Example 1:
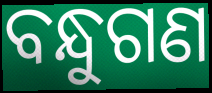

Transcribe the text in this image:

ବନ୍ଧୁଗଣ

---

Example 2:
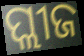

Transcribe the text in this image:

ପ୍ଲୀଜ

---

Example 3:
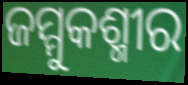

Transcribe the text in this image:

ଜମ୍ମୁକଶ୍ମୀର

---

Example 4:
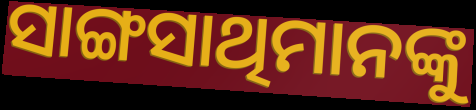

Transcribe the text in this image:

ସାଙ୍ଗସାଥିମାନଙ୍କୁ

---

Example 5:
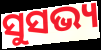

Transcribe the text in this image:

ସୁସଭ୍ୟ